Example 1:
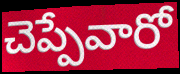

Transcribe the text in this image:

చెప్పేవారో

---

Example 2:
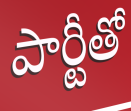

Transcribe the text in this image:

పార్టీతో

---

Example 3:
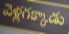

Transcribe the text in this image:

వెళ్లగక్కాడు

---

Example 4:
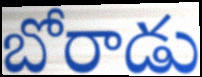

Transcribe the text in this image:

బోరాడు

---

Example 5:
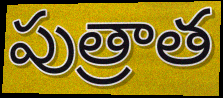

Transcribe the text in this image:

పుత్రాత